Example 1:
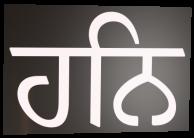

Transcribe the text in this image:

ਹਨਿ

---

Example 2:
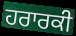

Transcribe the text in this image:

ਹਰਾਰਕੀ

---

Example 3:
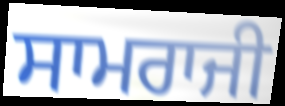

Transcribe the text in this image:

ਸਾਮਰਾਜੀ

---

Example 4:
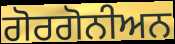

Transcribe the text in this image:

ਗੋਰਗੋਨੀਅਨ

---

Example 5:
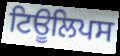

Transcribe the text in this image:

ਟਿਊਲਿਪਸ